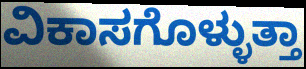
ವಿಕಾಸಗೊಳ್ಳುತ್ತಾ